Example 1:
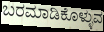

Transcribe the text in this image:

ಬರಮಾಡಿಕೊಳ್ಳುವ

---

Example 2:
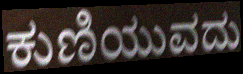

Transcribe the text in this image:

ಕುಣಿಯುವದು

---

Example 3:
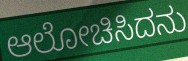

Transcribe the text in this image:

ಆಲೋಚಿಸಿದನು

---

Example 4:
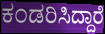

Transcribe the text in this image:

ಕಂಡರಿಸಿದ್ದಾರೆ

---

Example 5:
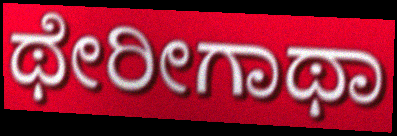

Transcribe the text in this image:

ಥೇರೀಗಾಥಾ